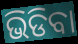
ଭିଡିବା